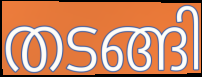
തടങ്ങി